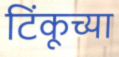
टिंकूच्या